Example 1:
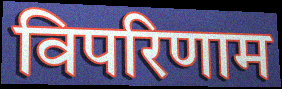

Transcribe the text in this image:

विपरिणाम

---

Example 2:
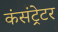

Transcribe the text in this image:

कंसंट्रेटर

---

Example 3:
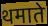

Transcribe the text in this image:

थमाते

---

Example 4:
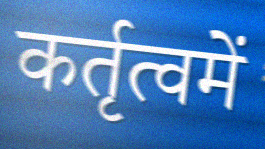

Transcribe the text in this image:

कर्तृत्वमें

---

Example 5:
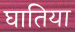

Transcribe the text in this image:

घातिया